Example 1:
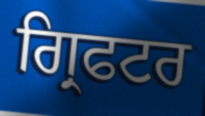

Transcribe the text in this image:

ਗ੍ਰਿਫਟਰ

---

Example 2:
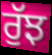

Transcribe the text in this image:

ਰੁੱਝ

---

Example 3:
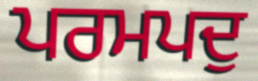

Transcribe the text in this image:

ਪਰਮਪਦੁ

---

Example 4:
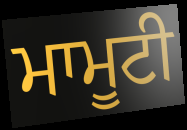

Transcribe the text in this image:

ਮਾਮੂਟੀ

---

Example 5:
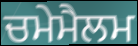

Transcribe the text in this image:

ਚਮੇਮੈਲਮ